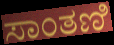
ಸಾಂತಣಿ